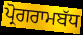
ਪ੍ਰੋਗਰਾਮਬੱਧ